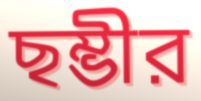
ছম্ভীর